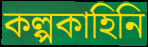
কল্পকাহিনি